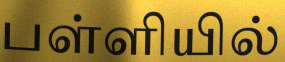
பள்ளியில்